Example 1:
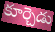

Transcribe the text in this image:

కూర్చెడు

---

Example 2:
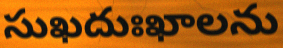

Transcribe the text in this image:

సుఖదుఃఖాలను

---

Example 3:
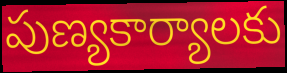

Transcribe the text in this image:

పుణ్యకార్యాలకు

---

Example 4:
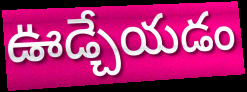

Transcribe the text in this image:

ఊడ్చేయడం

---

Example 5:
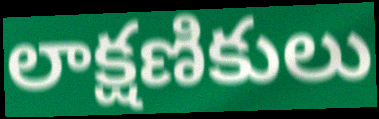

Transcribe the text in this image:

లాక్షణికులు